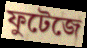
ফুটেজে